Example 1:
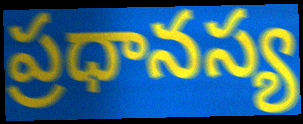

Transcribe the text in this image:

ప్రధానస్య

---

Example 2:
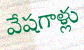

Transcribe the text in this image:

వేషగాళ్లు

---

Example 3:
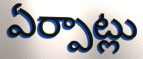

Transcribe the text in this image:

ఏర్పాట్లు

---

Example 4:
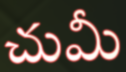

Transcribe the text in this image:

చుమీ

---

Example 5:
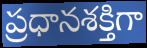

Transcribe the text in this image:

ప్రధానశక్తిగా